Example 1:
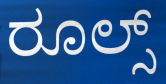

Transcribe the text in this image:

ರೂಲ್ಸ್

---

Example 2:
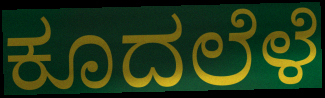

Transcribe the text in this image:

ಕೂದಲೆಳೆ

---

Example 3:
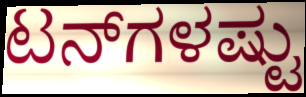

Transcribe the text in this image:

ಟನ್‌ಗಳಷ್ಟು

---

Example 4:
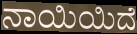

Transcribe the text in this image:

ನಾಯಿಯಿದೆ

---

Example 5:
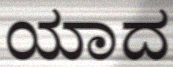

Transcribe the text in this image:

ಯಾದ